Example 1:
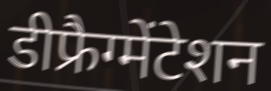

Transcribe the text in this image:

डीफ्रैग्मेंटेशन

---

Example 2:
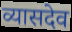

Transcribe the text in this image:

व्यासदेव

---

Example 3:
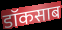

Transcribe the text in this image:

डॉकसाब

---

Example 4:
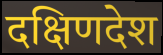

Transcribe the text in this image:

दक्षिणदेश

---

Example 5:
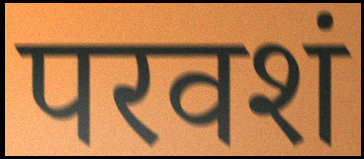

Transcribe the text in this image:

परवशं